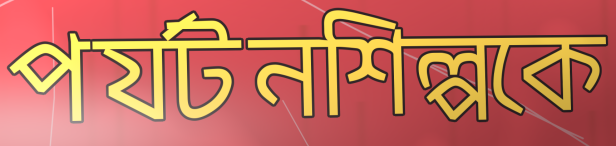
পর্যটনশিল্পকে